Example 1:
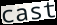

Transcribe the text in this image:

cast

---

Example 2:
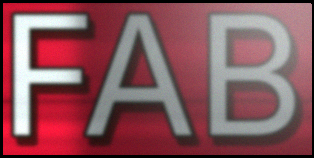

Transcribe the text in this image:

FAB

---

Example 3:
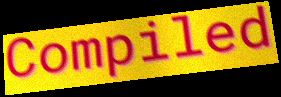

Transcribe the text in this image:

Compiled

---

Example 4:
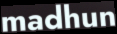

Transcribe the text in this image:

madhun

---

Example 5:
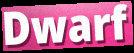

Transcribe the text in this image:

Dwarf